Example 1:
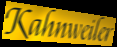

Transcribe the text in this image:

Kahnweiler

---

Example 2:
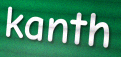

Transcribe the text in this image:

kanth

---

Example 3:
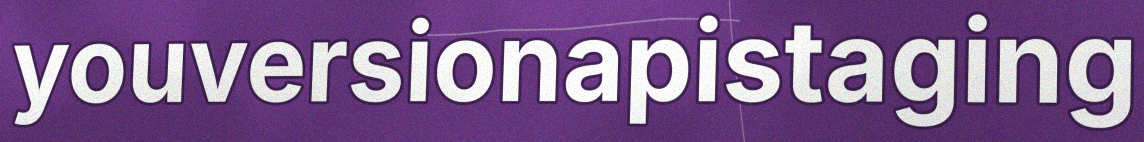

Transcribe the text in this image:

youversionapistaging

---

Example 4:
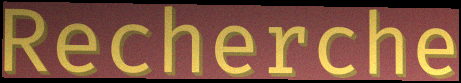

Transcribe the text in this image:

Recherche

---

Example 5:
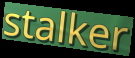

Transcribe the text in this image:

stalker